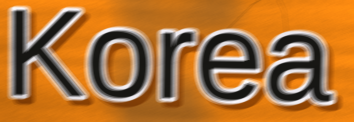
Korea